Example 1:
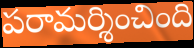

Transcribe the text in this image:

పరామర్శించింది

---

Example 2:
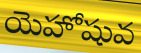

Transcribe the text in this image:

యెహోషువ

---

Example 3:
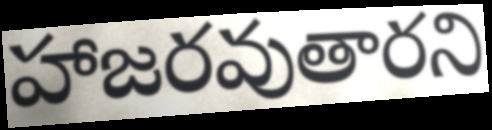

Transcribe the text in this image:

హాజరవుతారని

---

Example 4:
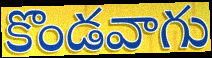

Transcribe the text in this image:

కొండవాగు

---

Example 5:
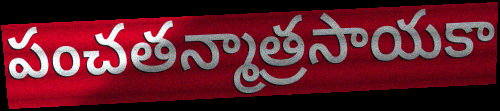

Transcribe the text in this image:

పంచతన్మాత్రసాయకా